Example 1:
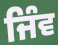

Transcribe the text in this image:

ਜਿੰਵ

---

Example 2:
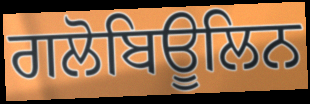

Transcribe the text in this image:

ਗਲੋਬਿਊਲਿਨ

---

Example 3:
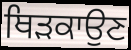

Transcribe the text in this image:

ਥਿੜਕਾਉਣ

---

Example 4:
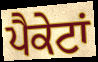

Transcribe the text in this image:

ਪੈਕੇਟਾਂ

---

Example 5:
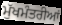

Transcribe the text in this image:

ਮੁੱਖਮੰਤਰੀਆਂ